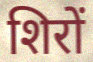
शिरों